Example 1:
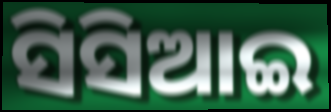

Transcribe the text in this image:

ସିସିଆଇ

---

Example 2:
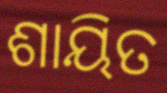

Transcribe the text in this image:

ଶାୟିତ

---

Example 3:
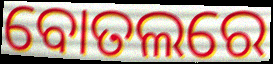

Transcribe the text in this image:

ବୋତଲରେ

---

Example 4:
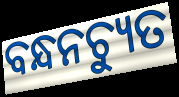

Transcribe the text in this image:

ବନ୍ଧନଚ୍ୟୁତ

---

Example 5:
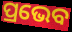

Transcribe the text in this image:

ପ୍ରଭେବ